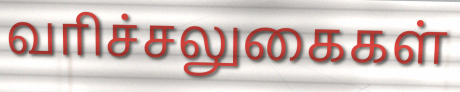
வரிச்சலுகைகள்